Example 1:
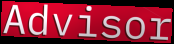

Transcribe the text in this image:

Advisor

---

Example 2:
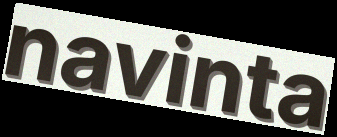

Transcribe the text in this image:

navinta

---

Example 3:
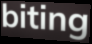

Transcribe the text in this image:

biting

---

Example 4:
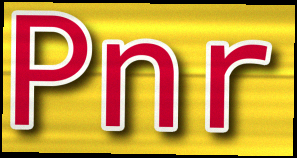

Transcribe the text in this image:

Pnr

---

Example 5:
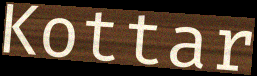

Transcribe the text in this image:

Kottar